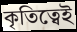
কৃতিত্বেই